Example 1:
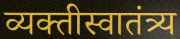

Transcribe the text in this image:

व्यक्तीस्वातंत्र्य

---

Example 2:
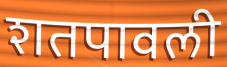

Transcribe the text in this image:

शतपावली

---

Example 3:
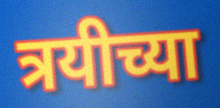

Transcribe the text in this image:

त्रयीच्या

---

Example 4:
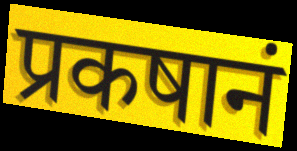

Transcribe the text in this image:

प्रकषानं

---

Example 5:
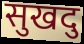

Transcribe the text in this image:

सुखदु